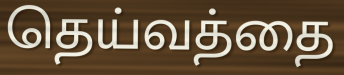
தெய்வத்தை